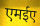
एमईए